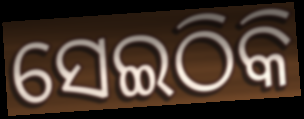
ସେଇଠିକି